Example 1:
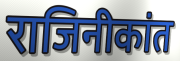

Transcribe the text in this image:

राजिनीकांत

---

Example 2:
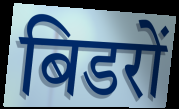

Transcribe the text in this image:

बिडरों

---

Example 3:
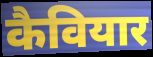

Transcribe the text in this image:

कैवियार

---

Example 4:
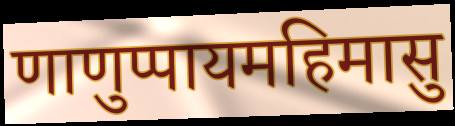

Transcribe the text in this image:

णाणुप्पायमहिमासु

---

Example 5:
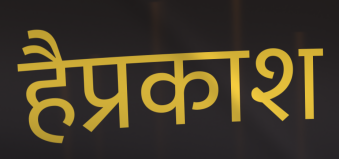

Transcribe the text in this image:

हैप्रकाश